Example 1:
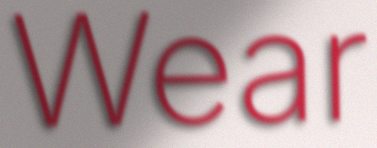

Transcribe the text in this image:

Wear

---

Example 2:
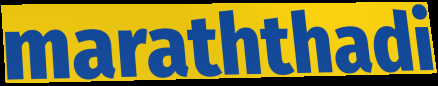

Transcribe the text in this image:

maraththadi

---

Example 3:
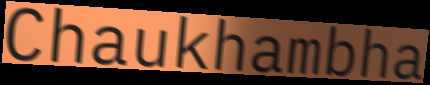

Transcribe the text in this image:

Chaukhambha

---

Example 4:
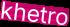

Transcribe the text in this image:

khetro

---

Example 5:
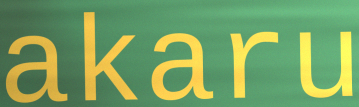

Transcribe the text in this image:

akaru